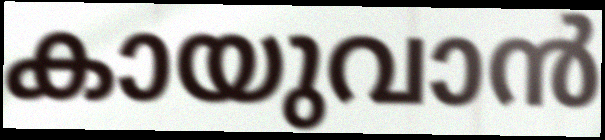
കായുവാൻ